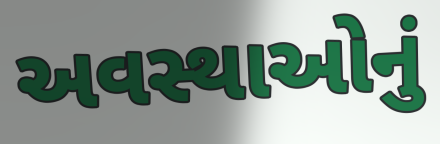
અવસ્થાઓનું